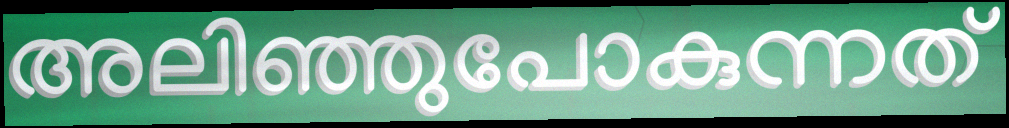
അലിഞ്ഞുപോകുന്നത്